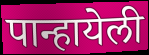
पान्हायेली